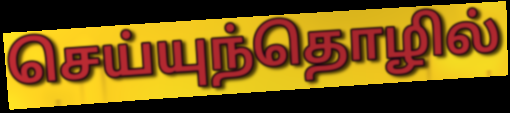
செய்யுந்தொழில்